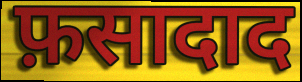
फ़सादाद